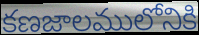
కణజాలములోనికి